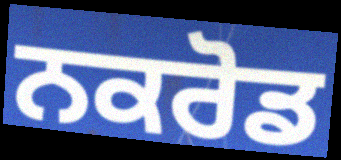
ਨਕਰੋਡ